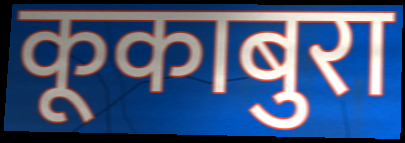
कूकाबुरा